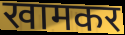
खामकर